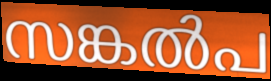
സങ്കൽപ